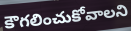
కౌగలించుకోవాలని